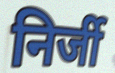
निर्जी